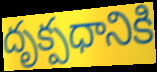
దృక్పధానికి